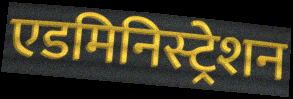
एडमिनिस्‍ट्रेशन